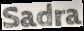
Sadra